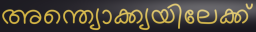
അന്ത്യൊക്ക്യയിലേക്ക്